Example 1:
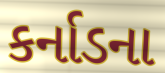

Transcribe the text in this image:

કર્નાડના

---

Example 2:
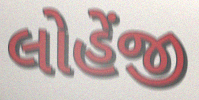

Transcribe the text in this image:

લોહેંજી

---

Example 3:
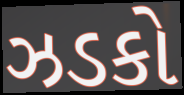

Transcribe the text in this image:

ઝડકો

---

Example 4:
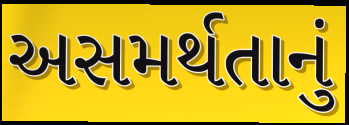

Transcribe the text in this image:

અસમર્થતાનું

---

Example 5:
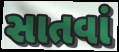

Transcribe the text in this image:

સાતવાં